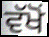
ਵੱਖੋਂ